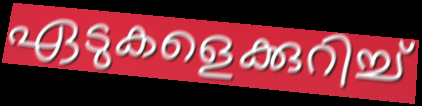
ഏടുകളെക്കുറിച്ച്